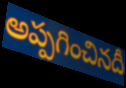
అప్పగించినదీ